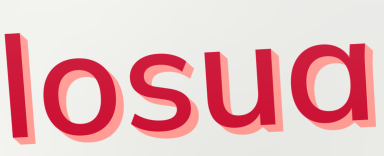
Iosua